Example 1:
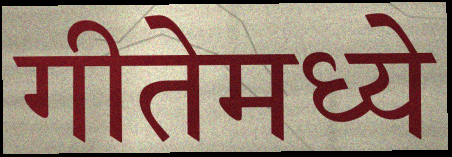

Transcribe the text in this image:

गीतेमध्ये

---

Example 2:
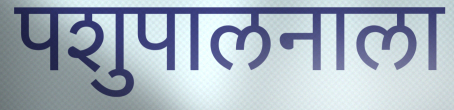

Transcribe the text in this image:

पशुपालनाला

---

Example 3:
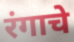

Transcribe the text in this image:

रंगाचे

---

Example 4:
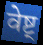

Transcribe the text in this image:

वेष्ट्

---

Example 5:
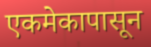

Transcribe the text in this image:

एकमेकापासून